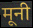
मूनी